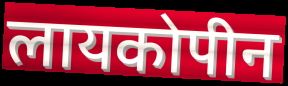
लायकोपीन